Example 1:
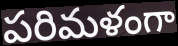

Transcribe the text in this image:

పరిమళంగా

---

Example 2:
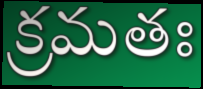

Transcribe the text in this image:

క్రమతః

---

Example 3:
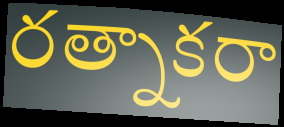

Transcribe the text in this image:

రత్నాకరా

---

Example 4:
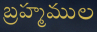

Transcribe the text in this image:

బ్రహ్మముల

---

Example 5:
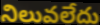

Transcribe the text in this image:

నిలువలేదు